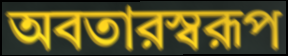
অবতারস্বরূপ